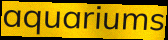
aquariums